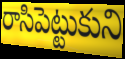
రాసిపెట్టుకుని